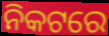
ନିକଟରେ